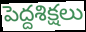
పెద్దశిక్షలు